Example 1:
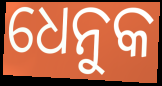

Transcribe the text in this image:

ଧେନୁକ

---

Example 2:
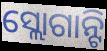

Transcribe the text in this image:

ସ୍ଲୋଗାନ୍ଟି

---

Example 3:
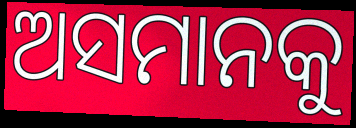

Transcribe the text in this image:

ଅସମାନକୁ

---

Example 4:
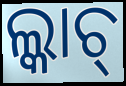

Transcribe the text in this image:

ଲ୍କାଚ୍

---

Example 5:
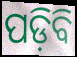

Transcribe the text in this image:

ପଡ଼ିବି